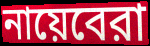
নায়েবেরা